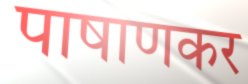
पाषाणकर